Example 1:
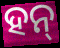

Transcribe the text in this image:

ହନ୍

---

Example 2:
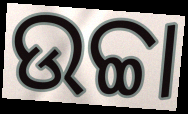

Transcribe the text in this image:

ଉଚ୍ଚା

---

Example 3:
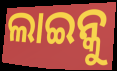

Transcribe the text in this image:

ଲାଇନ୍କୁ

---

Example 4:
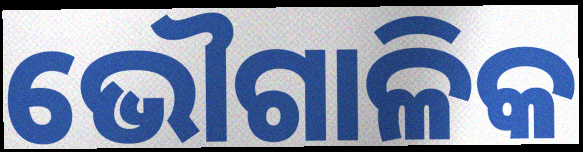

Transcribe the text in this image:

ଭୌଗାଳିକ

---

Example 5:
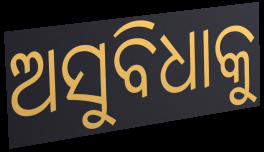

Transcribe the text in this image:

ଅସୁବିଧାକୁ